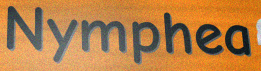
Nymphea